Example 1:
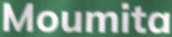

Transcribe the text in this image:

Moumita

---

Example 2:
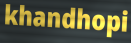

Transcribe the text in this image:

khandhopi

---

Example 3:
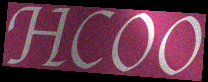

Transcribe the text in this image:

HCOO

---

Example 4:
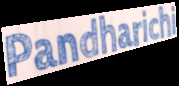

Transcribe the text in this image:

Pandharichi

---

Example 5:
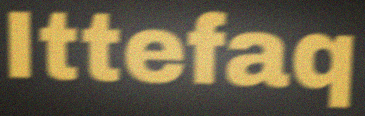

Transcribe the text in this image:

Ittefaq